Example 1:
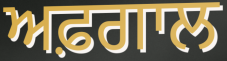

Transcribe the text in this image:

ਅਫ਼ਗਾਲ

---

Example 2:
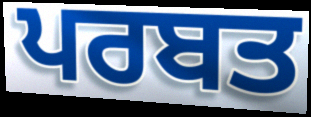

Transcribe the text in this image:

ਪਰਬਤ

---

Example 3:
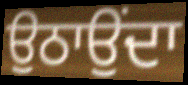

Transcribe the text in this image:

ਉਠਾਉਂਦਾ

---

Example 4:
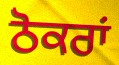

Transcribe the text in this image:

ਠੋਕਰਾਂ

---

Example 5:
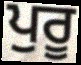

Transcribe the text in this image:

ਪੁਰੂ